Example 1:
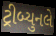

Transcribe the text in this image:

ટ્રીબ્યુનલે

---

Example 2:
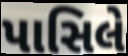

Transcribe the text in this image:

પાસિલે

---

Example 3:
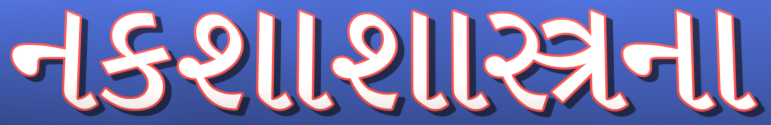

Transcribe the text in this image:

નકશાશાસ્ત્રના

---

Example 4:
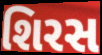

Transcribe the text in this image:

શિરસ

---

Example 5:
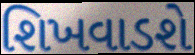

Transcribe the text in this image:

શિખવાડશે